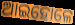
ଆଇହୋଳେ